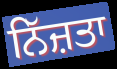
ਨਿੱਜ਼ਤਾ